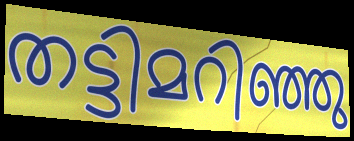
തട്ടിമറിഞ്ഞു